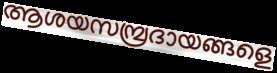
ആശയസമ്പ്രദായങ്ങളെ